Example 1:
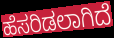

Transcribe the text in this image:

ಹೆಸರಿಡಲಾಗಿದೆ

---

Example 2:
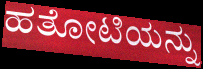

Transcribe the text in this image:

ಹತೋಟಿಯನ್ನು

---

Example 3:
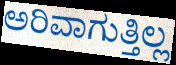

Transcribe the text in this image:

ಅರಿವಾಗುತ್ತಿಲ್ಲ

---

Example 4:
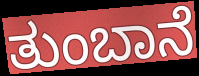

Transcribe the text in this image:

ತುಂಬಾನೆ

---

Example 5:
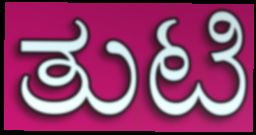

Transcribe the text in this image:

ತುಟಿ